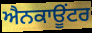
ਐਨਕਾਊਂਟਰ